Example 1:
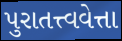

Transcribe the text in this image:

પુરાતત્ત્વવેત્તા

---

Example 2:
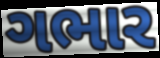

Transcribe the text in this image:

ગભાર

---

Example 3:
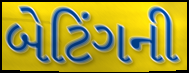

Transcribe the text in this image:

બેટિંગની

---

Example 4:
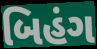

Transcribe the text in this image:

બિહંગ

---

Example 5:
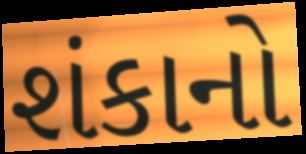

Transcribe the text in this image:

શંકાનો